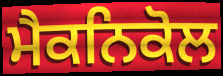
ਮੈਕਨਿਕੋਲ